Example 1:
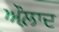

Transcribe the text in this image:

ਔਲ਼ਾਦ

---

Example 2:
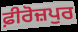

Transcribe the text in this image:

ਫ਼ੀਰੋਜ਼ਪੁਰ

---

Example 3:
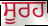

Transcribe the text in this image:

ਸੂਰਹ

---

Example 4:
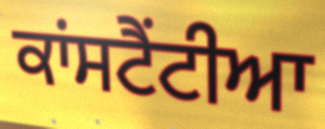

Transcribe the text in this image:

ਕਾਂਸਟੈਂਟੀਆ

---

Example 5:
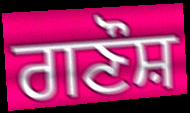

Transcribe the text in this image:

ਗਣੌਸ਼